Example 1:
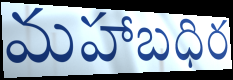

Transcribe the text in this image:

మహాబధిర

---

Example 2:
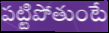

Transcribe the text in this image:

పట్టిపోతుంటే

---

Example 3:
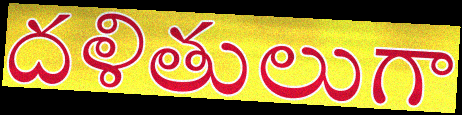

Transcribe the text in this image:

దళితులుగా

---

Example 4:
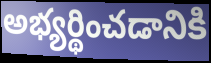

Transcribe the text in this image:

అభ్యర్థించడానికి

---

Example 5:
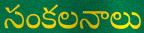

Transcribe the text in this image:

సంకలనాలు